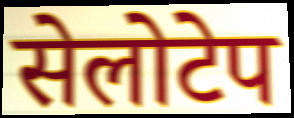
सेलोटेप